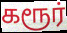
கரூர்